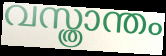
വസ്ത്രാന്തം